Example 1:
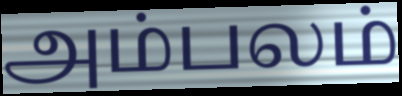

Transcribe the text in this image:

அம்பலம்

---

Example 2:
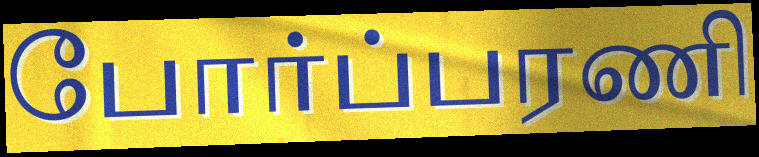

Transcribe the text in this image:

போர்ப்பரணி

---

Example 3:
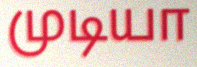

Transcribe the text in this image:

முடியா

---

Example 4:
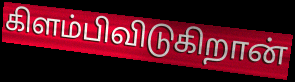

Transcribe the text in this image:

கிளம்பிவிடுகிறான்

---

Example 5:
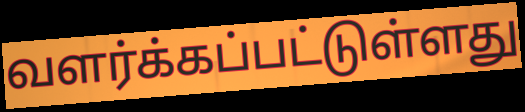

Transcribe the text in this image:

வளர்க்கப்பட்டுள்ளது